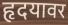
हृदयावर